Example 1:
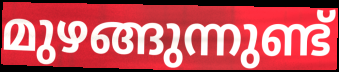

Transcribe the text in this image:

മുഴങ്ങുന്നുണ്ട്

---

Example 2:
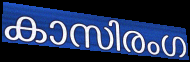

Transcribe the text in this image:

കാസിരംഗ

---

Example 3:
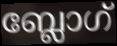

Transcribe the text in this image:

ബ്ലോഗ്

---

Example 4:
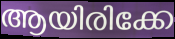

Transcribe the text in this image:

ആയിരിക്കേ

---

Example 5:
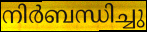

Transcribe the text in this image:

നിർബന്ധിച്ചു